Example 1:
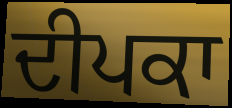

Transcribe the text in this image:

ਦੀਪਕਾ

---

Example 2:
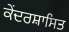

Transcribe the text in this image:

ਕੇਂਦਰਸ਼ਾਸਿਤ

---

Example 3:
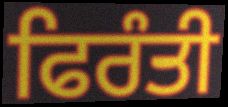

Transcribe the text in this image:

ਫਿਰੰਤੀ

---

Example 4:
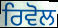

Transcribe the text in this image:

ਰਿਵੋਲ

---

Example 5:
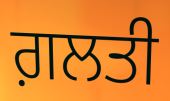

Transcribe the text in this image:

ਗ਼ਲਤੀ